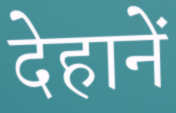
देहानें